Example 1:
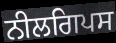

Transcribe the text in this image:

ਨੀਲਗਿਪਸ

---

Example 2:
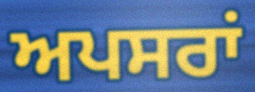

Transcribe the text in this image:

ਅਪਸਰਾਂ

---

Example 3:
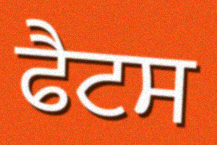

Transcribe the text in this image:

ਫੈਟਸ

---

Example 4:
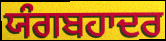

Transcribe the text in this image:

ਯੰਗਬਹਾਦਰ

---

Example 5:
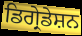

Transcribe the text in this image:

ਡਿਗ੍ਰੇਡੇਸ਼ਨ